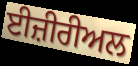
ਈਜ਼ੀਰੀਅਲ